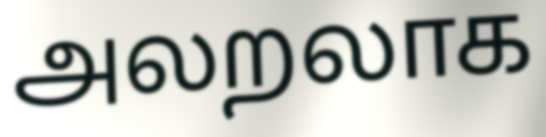
அலறலாக